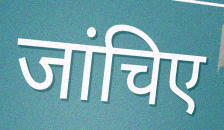
जांचिए